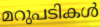
മറുപടികൾ